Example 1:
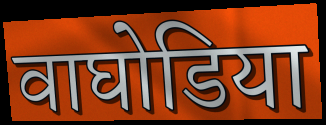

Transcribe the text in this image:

वाघोडिया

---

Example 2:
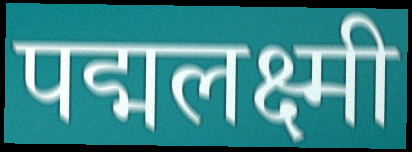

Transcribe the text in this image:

पद्मलक्ष्मी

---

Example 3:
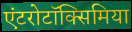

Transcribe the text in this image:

एंटरोटॉक्सिमिया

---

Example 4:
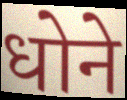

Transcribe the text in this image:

धोने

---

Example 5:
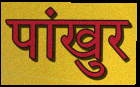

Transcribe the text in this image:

पांखुर